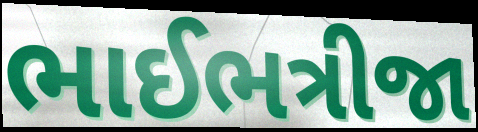
ભાઈભત્રીજા